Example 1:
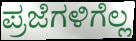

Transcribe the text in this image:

ಪ್ರಜೆಗಳಿಗೆಲ್ಲ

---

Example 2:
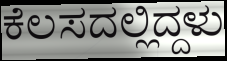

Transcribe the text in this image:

ಕೆಲಸದಲ್ಲಿದ್ದಳು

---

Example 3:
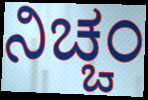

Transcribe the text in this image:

ನಿಚ್ಚಂ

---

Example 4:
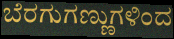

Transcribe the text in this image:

ಬೆರಗುಗಣ್ಣುಗಳಿಂದ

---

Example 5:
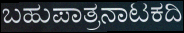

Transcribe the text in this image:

ಬಹುಪಾತ್ರನಾಟಕದಿ